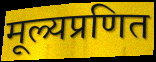
मूल्यप्रणित